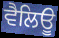
ਵੈਲਿਊ